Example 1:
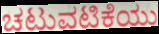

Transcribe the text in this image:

ಚಟುವಟಿಕೆಯು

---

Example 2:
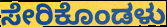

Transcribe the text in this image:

ಸೇರಿಕೊಂಡಳು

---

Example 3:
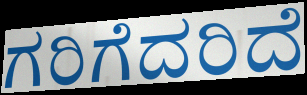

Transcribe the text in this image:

ಗರಿಗೆದರಿದೆ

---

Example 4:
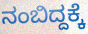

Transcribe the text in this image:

ನಂಬಿದ್ದಕ್ಕೆ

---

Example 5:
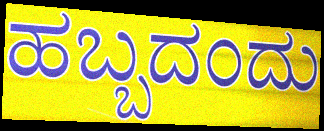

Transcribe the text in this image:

ಹಬ್ಬದಂದು